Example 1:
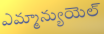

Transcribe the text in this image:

ఎమ్మాన్యుయెల్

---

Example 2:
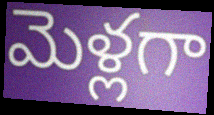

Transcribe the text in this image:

మెళ్లగా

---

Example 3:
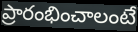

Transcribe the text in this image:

ప్రారంభించాలంటే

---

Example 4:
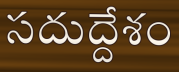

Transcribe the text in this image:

సదుద్దేశం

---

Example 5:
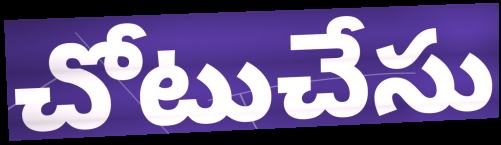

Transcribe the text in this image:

చోటుచేసు